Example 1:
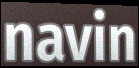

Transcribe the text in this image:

navin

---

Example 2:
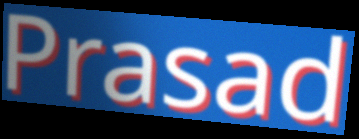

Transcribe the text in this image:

Prasad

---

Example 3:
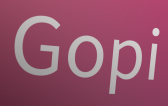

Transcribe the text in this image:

Gopi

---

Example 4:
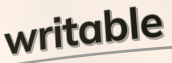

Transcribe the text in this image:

writable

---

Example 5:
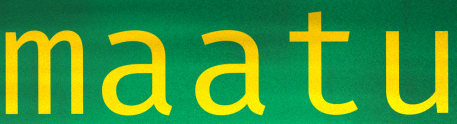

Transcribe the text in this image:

maatu